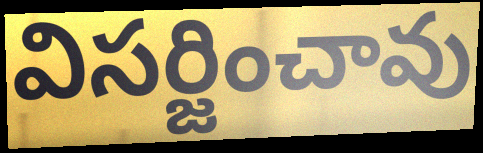
విసర్జించావు